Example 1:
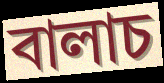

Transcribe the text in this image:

বালাচ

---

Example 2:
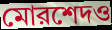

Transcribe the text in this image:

মোরশেদও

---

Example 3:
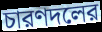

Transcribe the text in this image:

চারণদলের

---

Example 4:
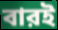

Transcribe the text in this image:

বারই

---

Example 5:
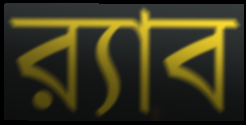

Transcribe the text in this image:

র‍্যাব